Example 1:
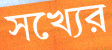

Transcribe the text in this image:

সখ্যের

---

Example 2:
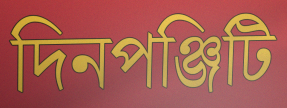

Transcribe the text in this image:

দিনপঞ্জিটি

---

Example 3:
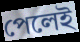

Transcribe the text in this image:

পেলেই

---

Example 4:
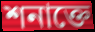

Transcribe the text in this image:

শনাক্তে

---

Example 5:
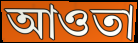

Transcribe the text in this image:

আওতা